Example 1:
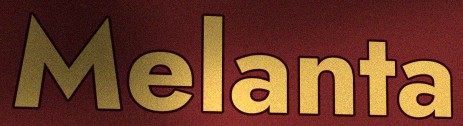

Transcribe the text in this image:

Melanta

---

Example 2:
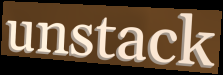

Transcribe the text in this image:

unstack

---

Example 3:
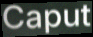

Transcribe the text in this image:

Caput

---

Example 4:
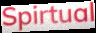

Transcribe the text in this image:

Spirtual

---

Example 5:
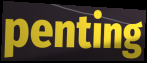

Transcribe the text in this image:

penting